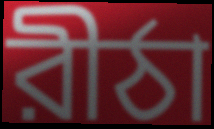
রীঠা